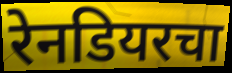
रेनडियरचा